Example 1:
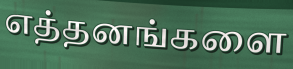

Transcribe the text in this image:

எத்தனங்களை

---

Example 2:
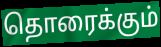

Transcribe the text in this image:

தொரைக்கும்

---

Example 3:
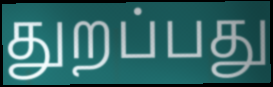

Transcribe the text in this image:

துறப்பது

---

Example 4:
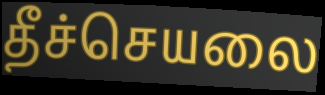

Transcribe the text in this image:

தீச்செயலை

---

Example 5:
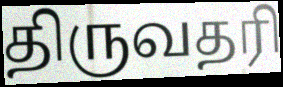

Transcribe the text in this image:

திருவதரி